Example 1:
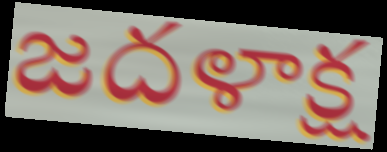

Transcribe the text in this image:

జదళాక్ష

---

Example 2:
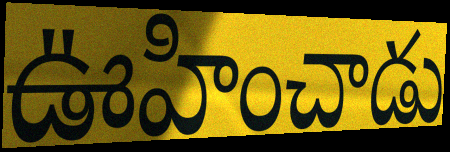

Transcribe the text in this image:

ఊహించాడు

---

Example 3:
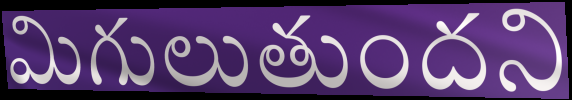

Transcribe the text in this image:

మిగులుతుందని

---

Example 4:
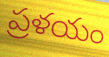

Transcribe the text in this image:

ప్రళయం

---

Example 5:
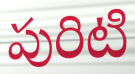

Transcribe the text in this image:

పురిటి